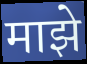
माझे